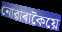
নোৱাৰাকৈয়ে